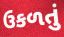
ઉકળતું